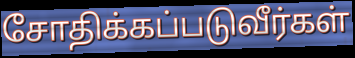
சோதிக்கப்படுவீர்கள்